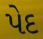
પેદ